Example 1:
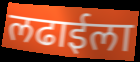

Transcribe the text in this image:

लढाईला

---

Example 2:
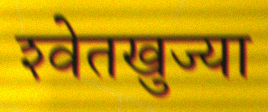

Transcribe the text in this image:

श्वेतखुज्या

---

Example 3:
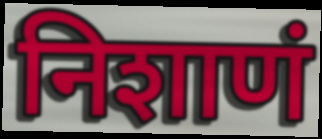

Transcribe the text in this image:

निशाणं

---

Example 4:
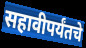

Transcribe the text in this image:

सहावीपर्यंतचे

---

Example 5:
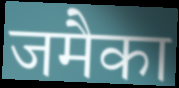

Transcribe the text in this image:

जमैका